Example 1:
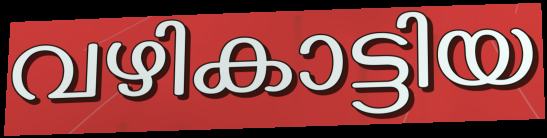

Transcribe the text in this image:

വഴികാട്ടിയ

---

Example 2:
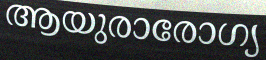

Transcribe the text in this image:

ആയുരാരോഗ്യ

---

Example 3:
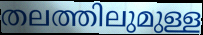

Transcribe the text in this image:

തലത്തിലുമുള്ള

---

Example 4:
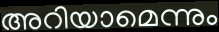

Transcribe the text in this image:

അറിയാമെന്നും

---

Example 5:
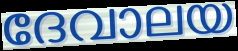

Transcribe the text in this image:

ദേവാലയ